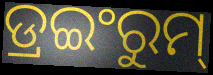
ଡ୍ରଇଂରୁମ୍